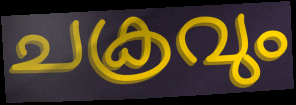
ചക്രവും